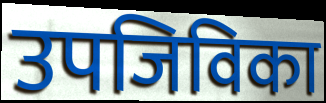
उपजिविका